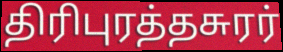
திரிபுரத்தசுரர்